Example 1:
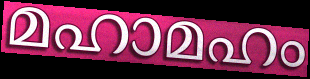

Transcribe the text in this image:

മഹാമഹം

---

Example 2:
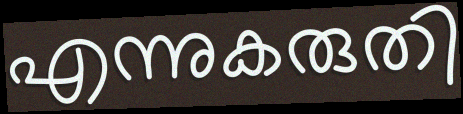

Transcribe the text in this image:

എന്നുകരുതി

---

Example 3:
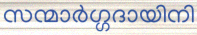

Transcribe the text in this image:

സന്മാർഗ്ഗദായിനി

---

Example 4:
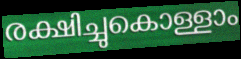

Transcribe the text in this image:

രക്ഷിച്ചുകൊള്ളാം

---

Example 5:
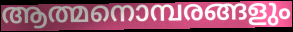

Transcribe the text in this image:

ആത്മനൊമ്പരങ്ങളും